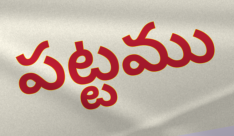
పట్టము